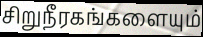
சிறுநீரகங்களையும்